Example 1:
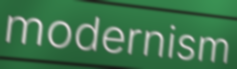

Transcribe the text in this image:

modernism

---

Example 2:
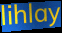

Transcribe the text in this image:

lihlay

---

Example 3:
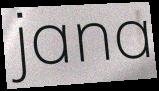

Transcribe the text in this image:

jana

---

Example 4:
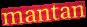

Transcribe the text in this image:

mantan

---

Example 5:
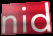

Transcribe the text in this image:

nid